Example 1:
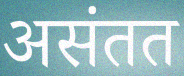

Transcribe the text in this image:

असंतत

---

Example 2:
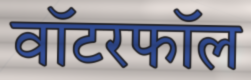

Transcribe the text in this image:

वॉटरफॉल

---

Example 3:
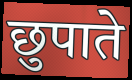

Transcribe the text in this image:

छुपाते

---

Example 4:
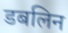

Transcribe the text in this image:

डबलिन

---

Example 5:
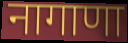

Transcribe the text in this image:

नागाणा